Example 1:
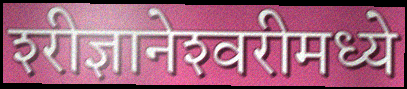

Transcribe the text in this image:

श्रीज्ञानेश्वरीमध्ये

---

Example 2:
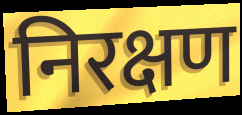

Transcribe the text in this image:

निरक्षण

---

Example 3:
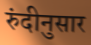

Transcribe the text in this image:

रुंदीनुसार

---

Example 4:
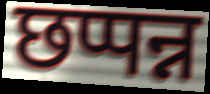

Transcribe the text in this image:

छप्पन्न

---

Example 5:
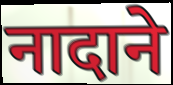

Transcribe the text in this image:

नादाने